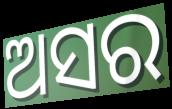
ଅସର